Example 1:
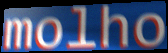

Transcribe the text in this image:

molho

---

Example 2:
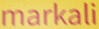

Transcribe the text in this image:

markali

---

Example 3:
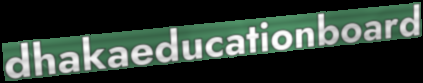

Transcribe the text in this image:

dhakaeducationboard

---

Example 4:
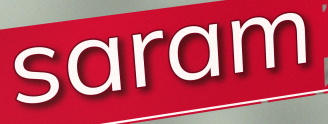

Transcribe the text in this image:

saram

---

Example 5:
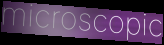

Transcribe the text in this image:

microscopic